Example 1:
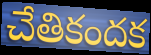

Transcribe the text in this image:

చేతికందక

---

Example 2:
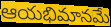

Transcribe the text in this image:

ఆయభిమానమే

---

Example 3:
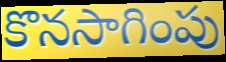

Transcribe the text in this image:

కొనసాగింపు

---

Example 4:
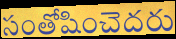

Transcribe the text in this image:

సంతోషించెదరు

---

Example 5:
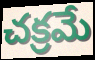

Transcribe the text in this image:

చక్రమే